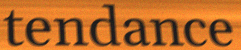
tendance